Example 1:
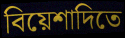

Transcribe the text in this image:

বিয়েশাদিতে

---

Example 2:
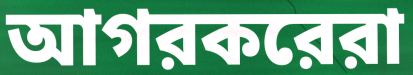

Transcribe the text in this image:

আগরকরেরা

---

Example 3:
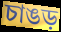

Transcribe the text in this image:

চাঙড়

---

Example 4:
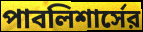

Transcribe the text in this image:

পাবলিশার্সের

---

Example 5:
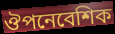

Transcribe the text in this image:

ঔপনেবেশিক